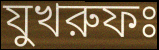
যুখরুফঃ